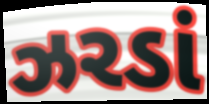
ઝરડાં